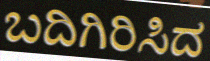
ಬದಿಗಿರಿಸಿದ